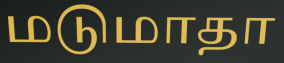
மடுமாதா